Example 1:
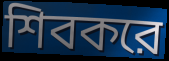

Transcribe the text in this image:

শিবকরে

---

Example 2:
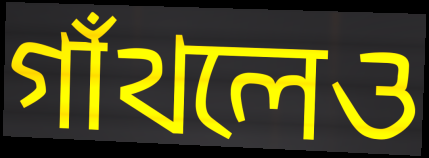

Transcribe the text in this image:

গাঁথলেও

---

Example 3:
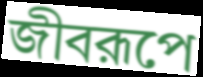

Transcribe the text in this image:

জীবরূপে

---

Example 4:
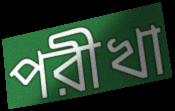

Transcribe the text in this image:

পরীখা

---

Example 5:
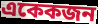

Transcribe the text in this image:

একেকজন